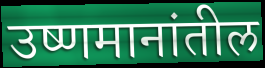
उष्णमानांतील